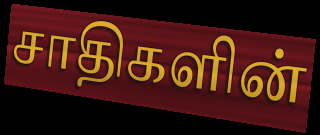
சாதிகளின்